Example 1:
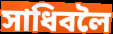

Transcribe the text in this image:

সাধিবলৈ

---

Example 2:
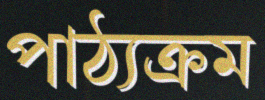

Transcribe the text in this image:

পাঠ্যক্ৰম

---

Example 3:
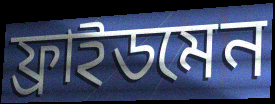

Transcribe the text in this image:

ফ্ৰাইডমেন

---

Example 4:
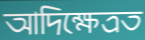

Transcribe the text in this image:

আদিক্ষেত্ৰত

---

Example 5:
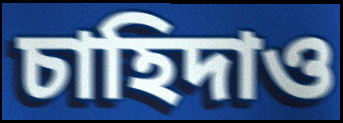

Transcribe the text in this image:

চাহিদাও